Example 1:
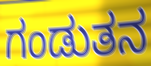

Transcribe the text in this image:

ಗಂಡುತನ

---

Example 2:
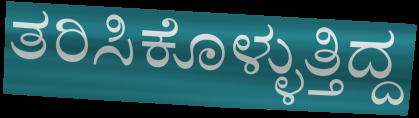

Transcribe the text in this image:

ತರಿಸಿಕೊಳ್ಳುತ್ತಿದ್ದ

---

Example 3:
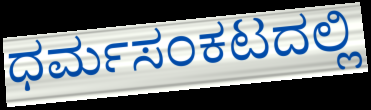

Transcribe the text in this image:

ಧರ್ಮಸಂಕಟದಲ್ಲಿ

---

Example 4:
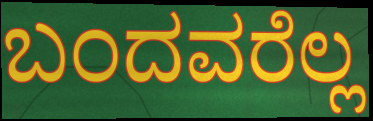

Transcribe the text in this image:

ಬಂದವರೆಲ್ಲ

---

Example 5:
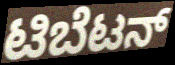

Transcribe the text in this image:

ಟಿಬೆಟನ್